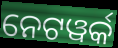
ନେଟୱର୍କ